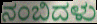
ನಂಬಿದಳು